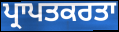
ਪ੍ਰਾਪਤਕਰਤਾ